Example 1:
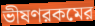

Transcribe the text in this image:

ভীষণরকমের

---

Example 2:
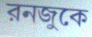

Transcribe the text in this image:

রনজুকে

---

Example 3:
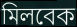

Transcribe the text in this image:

মিলবেক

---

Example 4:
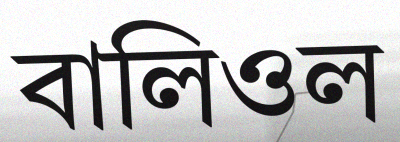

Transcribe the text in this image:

বালিওল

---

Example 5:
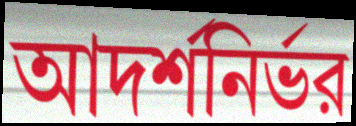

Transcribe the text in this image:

আদর্শনির্ভর